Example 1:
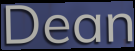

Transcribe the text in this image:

Dean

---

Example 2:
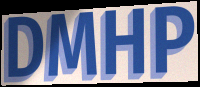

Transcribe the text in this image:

DMHP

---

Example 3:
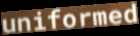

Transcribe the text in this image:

uniformed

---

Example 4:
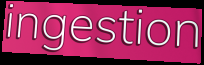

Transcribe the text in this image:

ingestion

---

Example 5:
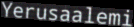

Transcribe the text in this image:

Yerusaalemi